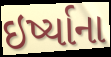
ઇર્ષ્યાના